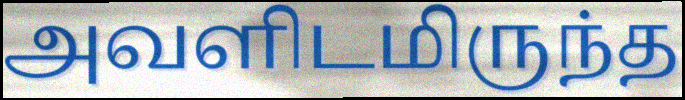
அவளிடமிருந்த